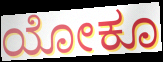
ಯೋಕೂ